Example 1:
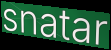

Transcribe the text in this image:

snatar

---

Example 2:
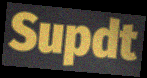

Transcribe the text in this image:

Supdt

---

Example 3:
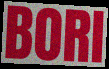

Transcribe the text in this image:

BORI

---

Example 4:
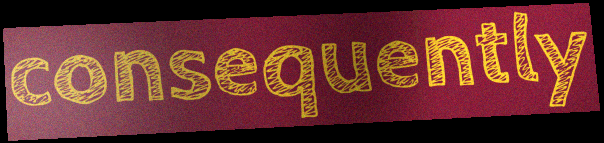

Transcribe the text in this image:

consequently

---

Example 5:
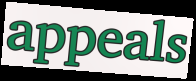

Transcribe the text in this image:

appeals